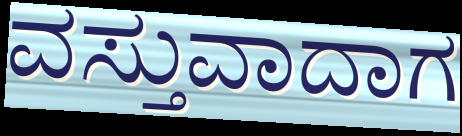
ವಸ್ತುವಾದಾಗ